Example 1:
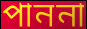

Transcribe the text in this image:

পাননা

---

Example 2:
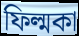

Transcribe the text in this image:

ফিল্মকা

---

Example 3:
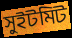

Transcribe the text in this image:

সুইটমিট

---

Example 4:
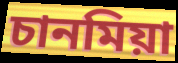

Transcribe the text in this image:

চানমিয়া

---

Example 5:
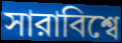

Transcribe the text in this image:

সারাবিশ্বে